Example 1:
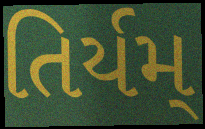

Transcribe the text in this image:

તિર્યમ્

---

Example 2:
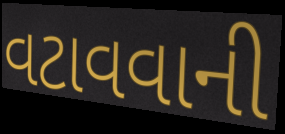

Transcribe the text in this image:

વટાવવાની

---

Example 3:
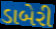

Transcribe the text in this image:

ડાબેરી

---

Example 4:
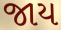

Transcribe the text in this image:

જાય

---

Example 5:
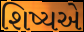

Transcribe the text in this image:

શિષ્યએ